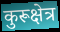
कुरूक्षेत्र